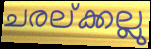
ചരല്ക്കല്ലു